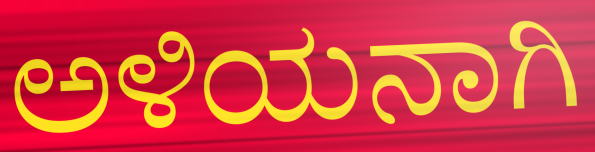
ಅಳಿಯನಾಗಿ